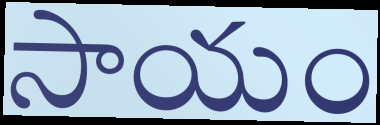
సాయం